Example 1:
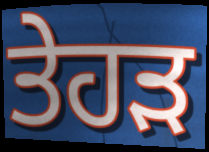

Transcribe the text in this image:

ਤੇਹੜ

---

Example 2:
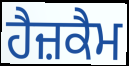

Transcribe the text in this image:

ਹੈਜ਼ਕੈਮ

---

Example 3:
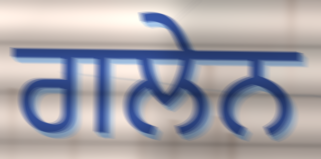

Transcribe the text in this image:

ਗਲੇਨ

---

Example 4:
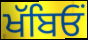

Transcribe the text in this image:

ਖੱਬਿਓਂ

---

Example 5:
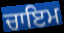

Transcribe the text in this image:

ਚਾਇਮ